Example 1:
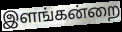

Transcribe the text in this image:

இளங்கன்றை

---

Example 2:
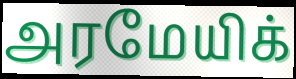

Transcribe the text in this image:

அரமேயிக்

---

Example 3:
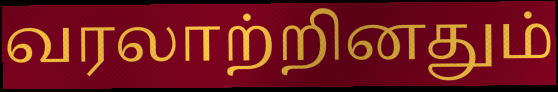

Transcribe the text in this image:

வரலாற்றினதும்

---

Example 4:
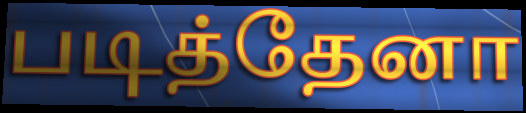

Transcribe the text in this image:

படித்தேனா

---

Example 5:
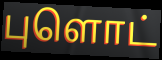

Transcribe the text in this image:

புளொட்